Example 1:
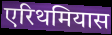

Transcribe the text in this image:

एरिथमियास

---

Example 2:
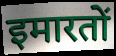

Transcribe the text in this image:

इमारतों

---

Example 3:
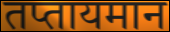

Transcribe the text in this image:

तप्तायमान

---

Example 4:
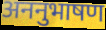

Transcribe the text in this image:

अननुभाषण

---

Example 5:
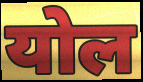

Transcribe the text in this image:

योल